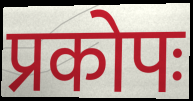
प्रकोपः